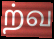
ற்வ